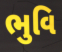
ભુવિ